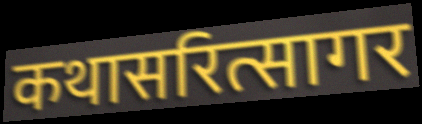
कथासरित्सागर